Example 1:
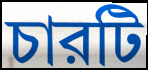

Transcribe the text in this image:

চারটি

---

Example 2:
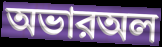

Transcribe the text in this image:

অভারঅল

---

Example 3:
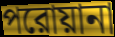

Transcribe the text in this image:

পরোয়ানা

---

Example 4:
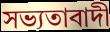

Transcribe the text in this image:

সভ্যতাবাদী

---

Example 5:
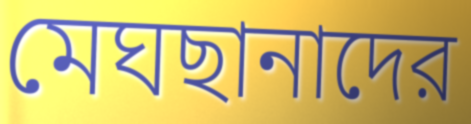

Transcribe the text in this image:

মেঘছানাদের